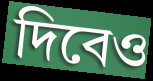
দিবেও